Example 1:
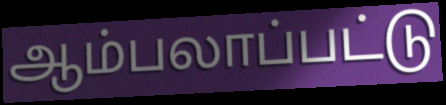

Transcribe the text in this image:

ஆம்பலாப்பட்டு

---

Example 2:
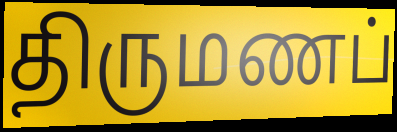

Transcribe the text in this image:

திருமணப்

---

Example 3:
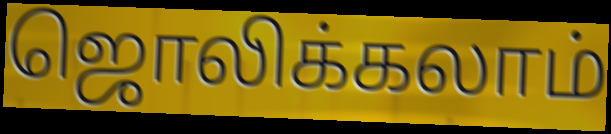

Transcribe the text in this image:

ஜொலிக்கலாம்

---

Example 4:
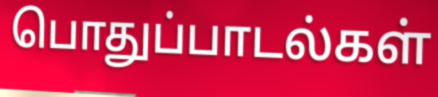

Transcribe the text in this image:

பொதுப்பாடல்கள்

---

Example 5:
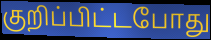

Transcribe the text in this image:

குறிப்பிட்டபோது